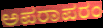
ಅಪರಾಪರಂ